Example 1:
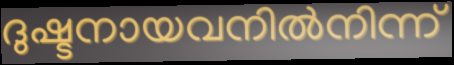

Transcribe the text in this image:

ദുഷ്ടനായവനിൽനിന്ന്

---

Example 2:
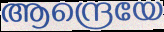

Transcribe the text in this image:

ആന്ദ്രെയേ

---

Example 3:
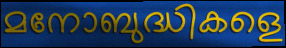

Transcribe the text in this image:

മനോബുദ്ധികളെ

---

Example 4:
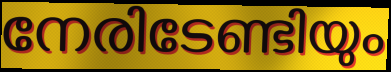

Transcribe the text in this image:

നേരിടേണ്ടിയും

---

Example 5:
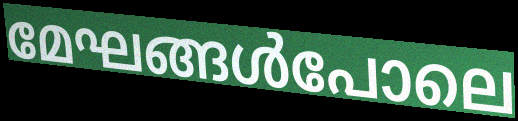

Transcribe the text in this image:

മേഘങ്ങൾപോലെ